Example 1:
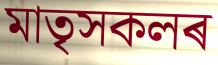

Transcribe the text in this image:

মাতৃসকলৰ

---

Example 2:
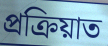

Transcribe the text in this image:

প্ৰক্ৰিয়াত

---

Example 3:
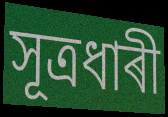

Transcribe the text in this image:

সূত্ৰধাৰী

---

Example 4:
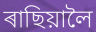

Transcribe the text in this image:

ৰাছিয়ালৈ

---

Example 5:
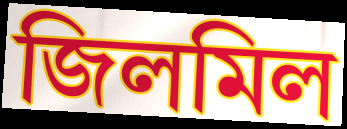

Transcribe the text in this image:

জিলমিল